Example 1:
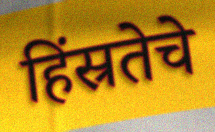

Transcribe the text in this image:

हिंस्रतेचे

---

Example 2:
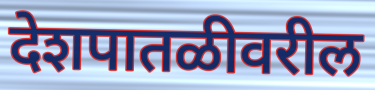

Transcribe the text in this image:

देशपातळीवरील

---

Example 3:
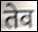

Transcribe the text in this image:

तेव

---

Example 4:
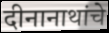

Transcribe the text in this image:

दीनानाथांचे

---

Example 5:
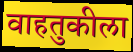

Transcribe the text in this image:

वाहतुकीला